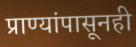
प्राण्यांपासूनही